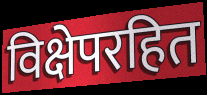
विक्षेपरहित